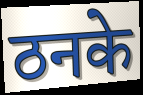
ठनके